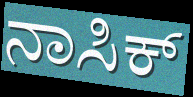
ನಾಸಿಕ್